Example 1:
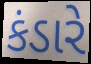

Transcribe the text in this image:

કંડારે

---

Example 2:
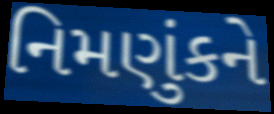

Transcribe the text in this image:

નિમણુંકને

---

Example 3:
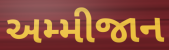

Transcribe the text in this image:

અમ્મીજાન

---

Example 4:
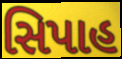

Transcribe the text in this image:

સિપાહ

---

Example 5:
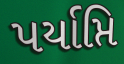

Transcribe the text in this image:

પર્યાપ્તિ